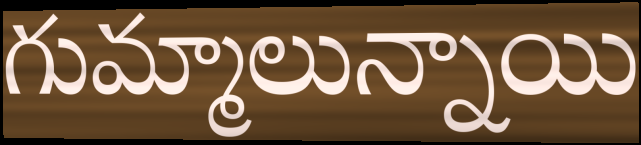
గుమ్మాలున్నాయి